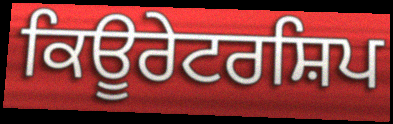
ਕਿਊਰੇਟਰਸ਼ਿਪ